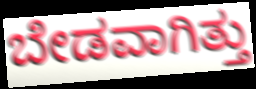
ಬೇಡವಾಗಿತ್ತು